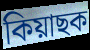
কিয়াছক